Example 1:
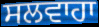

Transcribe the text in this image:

ਸਲਵਾਹਾ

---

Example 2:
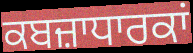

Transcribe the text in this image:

ਕਬਜ਼ਾਧਾਰਕਾਂ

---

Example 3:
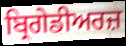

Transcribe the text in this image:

ਬ੍ਰਿਗੇਡੀਅਰਜ਼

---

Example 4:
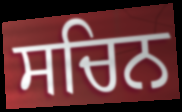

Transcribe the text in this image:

ਸਚਿਨ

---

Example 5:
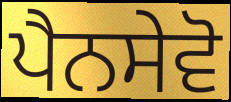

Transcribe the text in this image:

ਪੈਨਸੇਵੋ